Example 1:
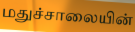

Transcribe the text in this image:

மதுச்சாலையின்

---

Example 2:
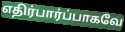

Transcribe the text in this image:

எதிர்பார்ப்பாகவே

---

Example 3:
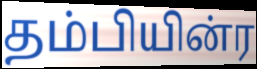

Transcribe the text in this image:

தம்பியின்ர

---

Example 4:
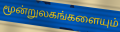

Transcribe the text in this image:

மூன்றுலகங்களையும்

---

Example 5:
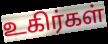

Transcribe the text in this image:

உகிர்கள்